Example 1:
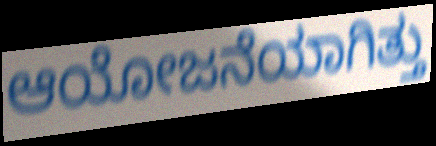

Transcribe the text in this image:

ಆಯೋಜನೆಯಾಗಿತ್ತು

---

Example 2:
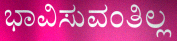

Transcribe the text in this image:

ಭಾವಿಸುವಂತಿಲ್ಲ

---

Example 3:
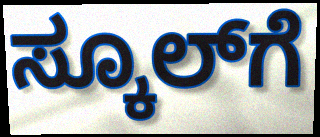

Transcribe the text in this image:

ಸ್ಕೂಲ್‌ಗೆ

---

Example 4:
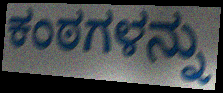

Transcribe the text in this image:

ಕಂಠಗಳನ್ನು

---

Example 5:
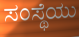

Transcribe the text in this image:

ಸಂಸ್ಥೆಯು